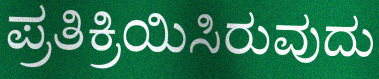
ಪ್ರತಿಕ್ರಿಯಿಸಿರುವುದು